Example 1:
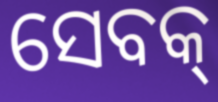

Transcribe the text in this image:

ସେବକ୍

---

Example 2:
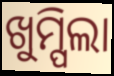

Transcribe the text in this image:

ଖୁମ୍ପିଲା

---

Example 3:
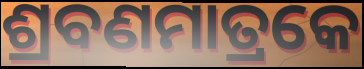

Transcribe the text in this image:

ଶ୍ରବଣମାତ୍ରକେ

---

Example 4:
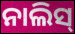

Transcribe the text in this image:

ନାଲିସ୍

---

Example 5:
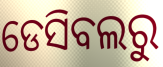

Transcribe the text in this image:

ଡେସିବଲରୁ